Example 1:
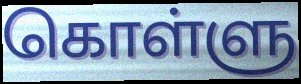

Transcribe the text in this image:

கொள்ளு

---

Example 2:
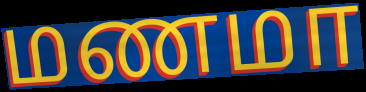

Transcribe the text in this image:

மணமா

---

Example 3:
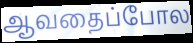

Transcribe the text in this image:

ஆவதைப்போல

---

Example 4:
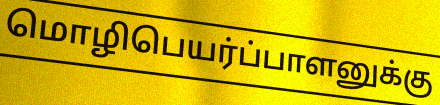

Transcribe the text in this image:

மொழிபெயர்ப்பாளனுக்கு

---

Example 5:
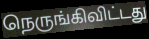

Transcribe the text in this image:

நெருங்கிவிட்டது